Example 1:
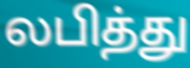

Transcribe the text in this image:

லபித்து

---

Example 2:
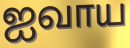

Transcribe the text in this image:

ஐவாய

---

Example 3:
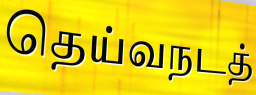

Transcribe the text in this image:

தெய்வநடத்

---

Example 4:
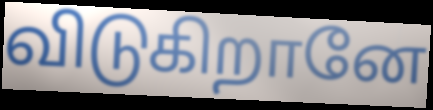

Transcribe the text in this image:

விடுகிறானே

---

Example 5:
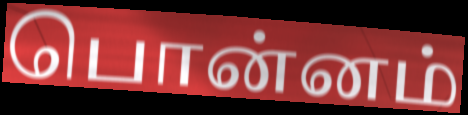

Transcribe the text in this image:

பொன்னம்